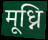
मूध्नि